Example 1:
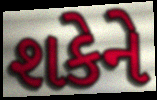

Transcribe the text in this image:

શકેને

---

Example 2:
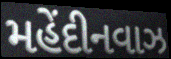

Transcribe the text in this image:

મહેંદીનવાઝ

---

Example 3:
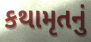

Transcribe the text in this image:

કથામૃતનું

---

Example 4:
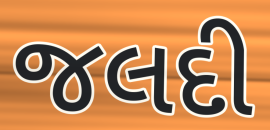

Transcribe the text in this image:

જલદી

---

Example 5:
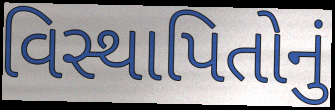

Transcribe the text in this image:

વિસ્થાપિતોનું